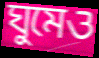
ঘুমেও